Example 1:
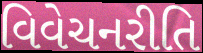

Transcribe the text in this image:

વિવેચનરીતિ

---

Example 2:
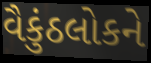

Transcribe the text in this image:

વૈકુંઠલોકને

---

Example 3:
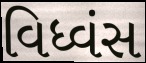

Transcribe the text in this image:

વિધ્વંસ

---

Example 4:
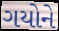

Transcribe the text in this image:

ગયોને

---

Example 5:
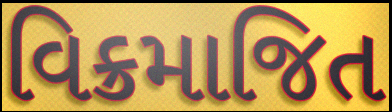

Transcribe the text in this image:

વિક્રમાજિત